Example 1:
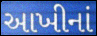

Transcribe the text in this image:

આખીનાં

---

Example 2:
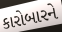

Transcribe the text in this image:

કારોબારને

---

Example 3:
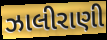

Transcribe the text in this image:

ઝાલીરાણી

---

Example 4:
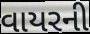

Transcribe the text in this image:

વાયરની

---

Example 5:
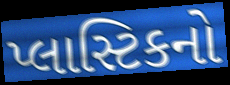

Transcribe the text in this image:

પ્લાસ્ટિકનો